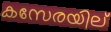
കസേരയില്